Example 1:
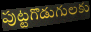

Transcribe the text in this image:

పుట్టగొడుగులకు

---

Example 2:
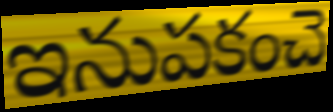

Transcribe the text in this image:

ఇనుపకంచె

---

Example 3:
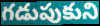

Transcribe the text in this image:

గడుపుకుని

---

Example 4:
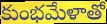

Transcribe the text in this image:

కుంభమేళాతో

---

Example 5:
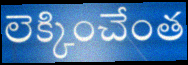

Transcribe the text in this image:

లెక్కించేంత